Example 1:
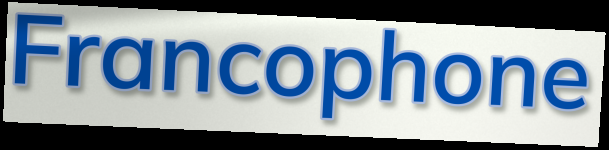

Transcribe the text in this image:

Francophone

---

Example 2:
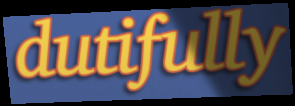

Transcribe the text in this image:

dutifully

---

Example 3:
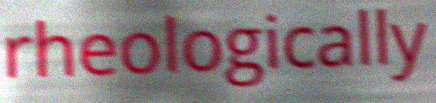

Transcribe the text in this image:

rheologically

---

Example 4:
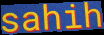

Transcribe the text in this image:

sahih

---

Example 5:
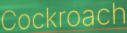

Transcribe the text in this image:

Cockroach